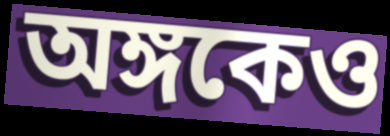
অঙ্গকেও